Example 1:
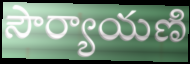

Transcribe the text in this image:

సౌర్యాయణి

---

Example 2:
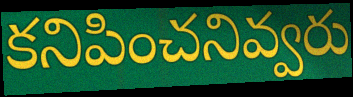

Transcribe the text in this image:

కనిపించనివ్వరు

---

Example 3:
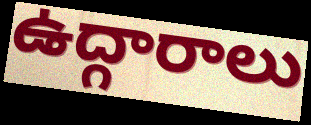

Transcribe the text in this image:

ఉద్గారాలు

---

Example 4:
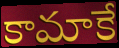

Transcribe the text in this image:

కామాకే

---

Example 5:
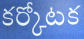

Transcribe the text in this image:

కర్కోటక